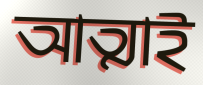
আত্মাই